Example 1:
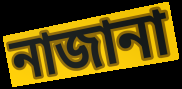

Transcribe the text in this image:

নাজানা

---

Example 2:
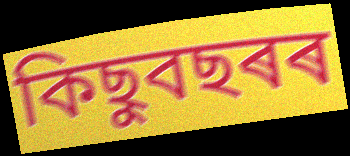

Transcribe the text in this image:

কিছুবছৰৰ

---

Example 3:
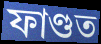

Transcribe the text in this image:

ফাণ্ডত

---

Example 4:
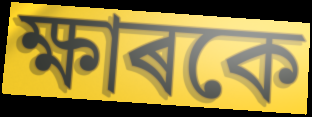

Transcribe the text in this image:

ক্ষাৰকে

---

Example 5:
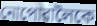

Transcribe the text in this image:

নোপোৱালৈকে